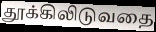
தூக்கிலிடுவதை